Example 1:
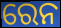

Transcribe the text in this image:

ରେନ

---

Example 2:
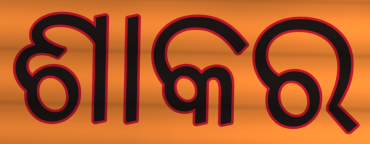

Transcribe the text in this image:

ଶାକର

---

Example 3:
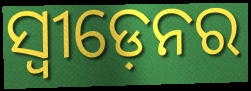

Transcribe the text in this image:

ସ୍ଵୀଡ଼େନର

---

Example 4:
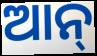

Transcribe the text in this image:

ଆନ୍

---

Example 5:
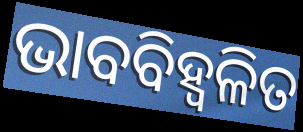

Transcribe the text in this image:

ଭାବବିହ୍ବଳିତ